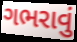
ગભરાવું